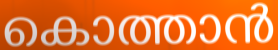
കൊത്താൻ